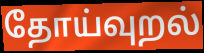
தோய்வுறல்